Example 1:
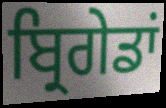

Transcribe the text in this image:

ਬ੍ਰਿਗੇਡਾਂ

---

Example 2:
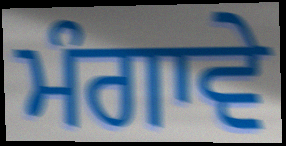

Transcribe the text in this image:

ਮੰਗਾਵੇ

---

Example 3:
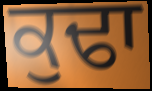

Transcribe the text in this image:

ਕੁਢਾ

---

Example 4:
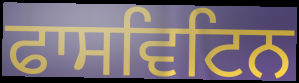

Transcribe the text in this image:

ਫਾਸਵਿਟਿਨ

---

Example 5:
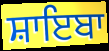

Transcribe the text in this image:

ਸ਼ਾਇਬਾ